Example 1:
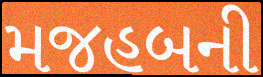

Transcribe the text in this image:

મજહબની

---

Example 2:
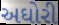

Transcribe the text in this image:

અઘોરી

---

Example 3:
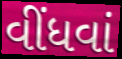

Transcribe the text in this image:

વીંધવાં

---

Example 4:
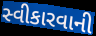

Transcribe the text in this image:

સ્વીકારવાની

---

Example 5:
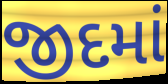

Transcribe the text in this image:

જીદમાં